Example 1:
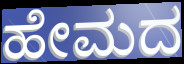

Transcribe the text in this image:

ಹೇಮದ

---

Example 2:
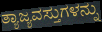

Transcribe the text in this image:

ತ್ಯಾಜ್ಯವಸ್ತುಗಳನ್ನು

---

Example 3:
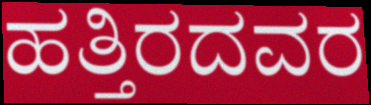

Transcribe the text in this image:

ಹತ್ತಿರದವರ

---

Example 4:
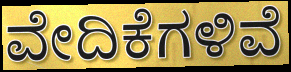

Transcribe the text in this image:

ವೇದಿಕೆಗಳಿವೆ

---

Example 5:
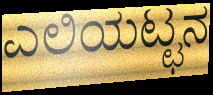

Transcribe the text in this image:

ಎಲಿಯಟ್ಟನ